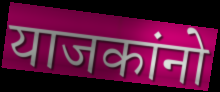
याजकांनो